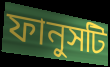
ফানুসটি